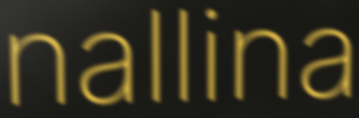
nallina